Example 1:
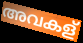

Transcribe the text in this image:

അവകള്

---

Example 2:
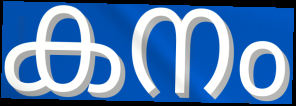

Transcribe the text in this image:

കനം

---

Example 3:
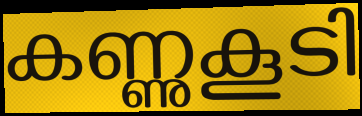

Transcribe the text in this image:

കണ്ണുകൂടി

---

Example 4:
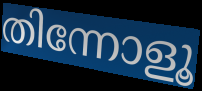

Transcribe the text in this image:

തിന്നോളൂ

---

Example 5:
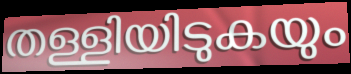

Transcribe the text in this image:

തള്ളിയിടുകയും